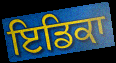
ਇਡਿਕਾ